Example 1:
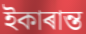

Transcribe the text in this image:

ইকাৰান্ত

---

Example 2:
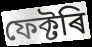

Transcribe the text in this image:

ফেক্টৰি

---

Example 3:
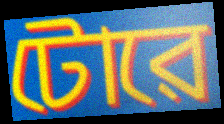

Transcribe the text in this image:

টোৱে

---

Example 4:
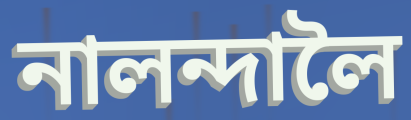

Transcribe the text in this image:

নালন্দালৈ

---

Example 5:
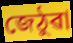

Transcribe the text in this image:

জেঠুৱা